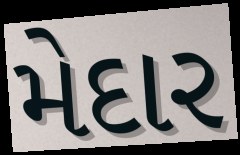
મેદાર